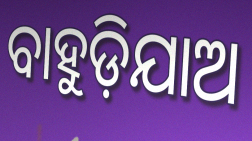
ବାହୁଡ଼ିଯାଅ